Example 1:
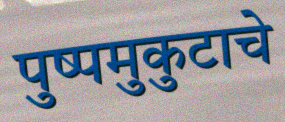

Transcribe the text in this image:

पुष्पमुकुटाचे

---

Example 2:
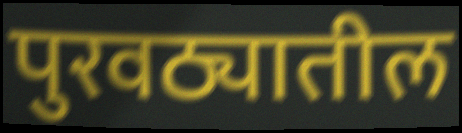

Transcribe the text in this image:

पुरवठ्यातील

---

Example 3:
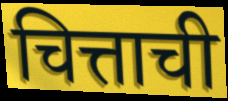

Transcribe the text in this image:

चित्ताची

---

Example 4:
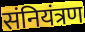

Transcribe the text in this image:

संनियंत्रण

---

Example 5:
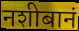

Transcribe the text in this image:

नशीबानं